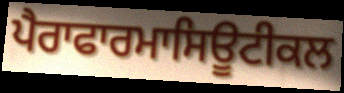
ਪੈਰਾਫਾਰਮਾਸਿਊਟੀਕਲ